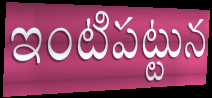
ఇంటిపట్టున